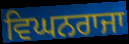
ਵਿਘਨਰਾਜਾ